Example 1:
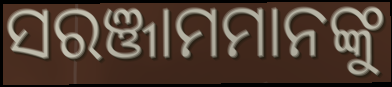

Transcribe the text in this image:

ସରଞ୍ଜାମମାନଙ୍କୁ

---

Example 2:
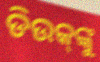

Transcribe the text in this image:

ଡିଉକ୍‌ଙ୍କୁ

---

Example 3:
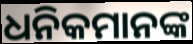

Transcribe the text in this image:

ଧନିକମାନଙ୍କ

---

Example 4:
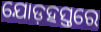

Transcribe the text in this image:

ଯୋଡ଼ହସ୍ତରେ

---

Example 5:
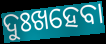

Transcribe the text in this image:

ଦୁଃଖହେବା